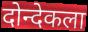
दोन्देकला